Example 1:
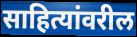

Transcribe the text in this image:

साहित्यांवरील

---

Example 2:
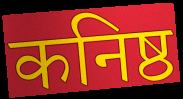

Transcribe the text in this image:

कनिष्ठ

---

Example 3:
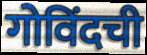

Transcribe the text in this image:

गोविंदची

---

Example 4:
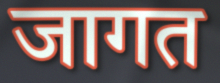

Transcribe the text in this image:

जागत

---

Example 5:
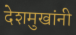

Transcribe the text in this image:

देशमुखांनी